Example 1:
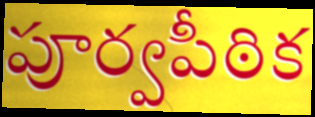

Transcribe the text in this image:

పూర్వపీఠిక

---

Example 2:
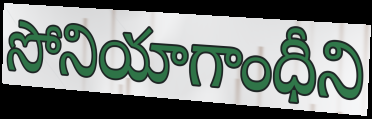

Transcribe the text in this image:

సోనియాగాంధీని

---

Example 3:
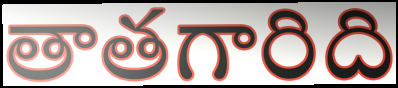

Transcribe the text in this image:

తాతగారిది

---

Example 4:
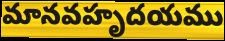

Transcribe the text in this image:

మానవహృదయము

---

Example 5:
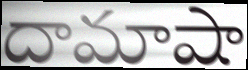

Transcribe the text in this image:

దామాషా